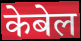
केबेल